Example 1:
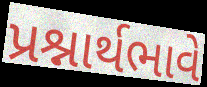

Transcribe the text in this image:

પ્રશ્નાર્થભાવે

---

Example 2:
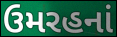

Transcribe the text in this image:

ઉમરહનાં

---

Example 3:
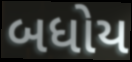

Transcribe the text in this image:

બધોય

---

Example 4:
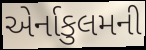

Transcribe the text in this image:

એર્નાકુલમની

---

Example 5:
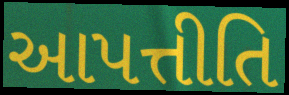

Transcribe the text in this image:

આપત્તીતિ